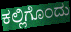
ಕಲ್ಲಿಗೊಂದು